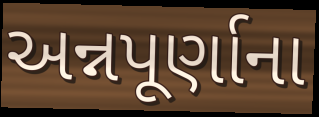
અન્નપૂર્ણાના